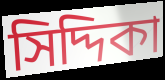
সিদ্দিকা